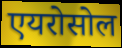
एयरोसोल